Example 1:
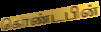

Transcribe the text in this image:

கொண்டபின்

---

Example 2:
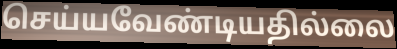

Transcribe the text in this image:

செய்யவேண்டியதில்லை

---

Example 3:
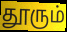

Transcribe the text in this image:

தூரும்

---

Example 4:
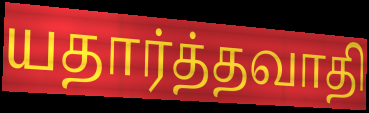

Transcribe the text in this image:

யதார்த்தவாதி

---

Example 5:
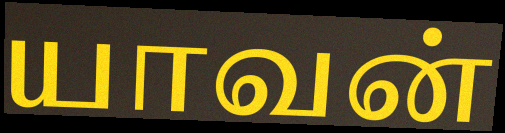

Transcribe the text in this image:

யாவன்